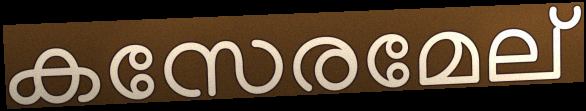
കസേരമേല്